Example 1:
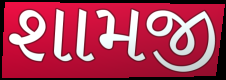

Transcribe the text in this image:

શામજી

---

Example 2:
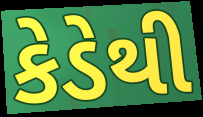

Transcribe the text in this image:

કેડેથી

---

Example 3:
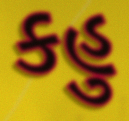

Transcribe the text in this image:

કહુ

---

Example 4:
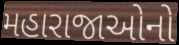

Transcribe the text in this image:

મહારાજાઓનો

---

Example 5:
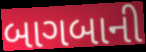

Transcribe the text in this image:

બાગબાની